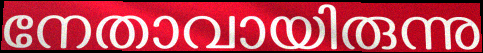
നേതാവായിരുന്നു